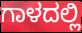
ಗಾಳದಲ್ಲಿ